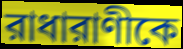
রাধারাণীকে